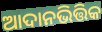
ଆଦାନଭିତ୍ତିକ